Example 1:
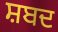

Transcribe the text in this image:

ਸ਼ਬਦ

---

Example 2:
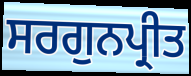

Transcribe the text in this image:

ਸਰਗੁਨਪ੍ਰੀਤ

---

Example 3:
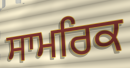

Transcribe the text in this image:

ਸਾਮਰਿਕ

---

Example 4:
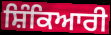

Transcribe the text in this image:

ਸ਼ਿੰਕਿਆਰੀ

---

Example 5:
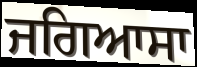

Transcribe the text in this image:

ਜਗਿਆਸਾ